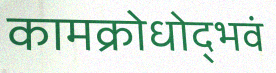
कामक्रोधोद्भवं